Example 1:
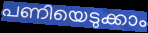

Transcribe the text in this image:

പണിയെടുക്കാം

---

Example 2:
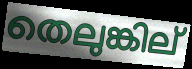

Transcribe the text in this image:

തെലുങ്കില്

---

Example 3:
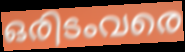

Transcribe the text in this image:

ഒരിടംവരെ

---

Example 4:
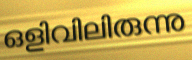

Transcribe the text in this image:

ഒളിവിലിരുന്നു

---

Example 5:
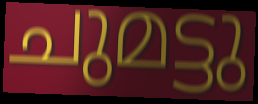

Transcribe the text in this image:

ചുമട്ടു